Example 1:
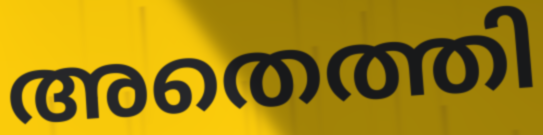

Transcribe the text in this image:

അതെത്തി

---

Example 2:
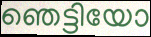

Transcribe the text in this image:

ഞെട്ടിയോ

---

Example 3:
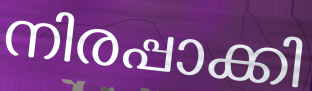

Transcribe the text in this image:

നിരപ്പാക്കി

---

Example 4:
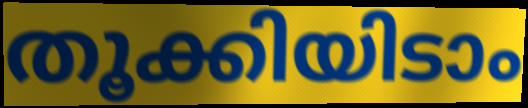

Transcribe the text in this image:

തൂക്കിയിടാം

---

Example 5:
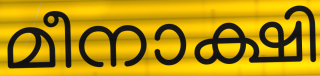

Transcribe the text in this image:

മീനാക്ഷി